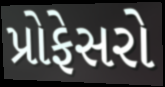
પ્રોફેસરો